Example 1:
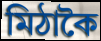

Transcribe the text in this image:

মিঠাকৈ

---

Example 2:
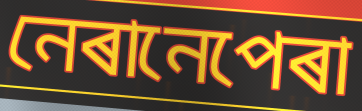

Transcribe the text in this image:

নেৰানেপেৰা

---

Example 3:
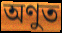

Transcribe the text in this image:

অণুত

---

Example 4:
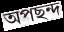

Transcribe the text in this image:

অপছন্দ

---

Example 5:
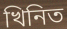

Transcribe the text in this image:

খিনিত